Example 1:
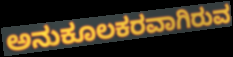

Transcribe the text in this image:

ಅನುಕೂಲಕರವಾಗಿರುವ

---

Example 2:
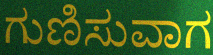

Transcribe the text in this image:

ಗುಣಿಸುವಾಗ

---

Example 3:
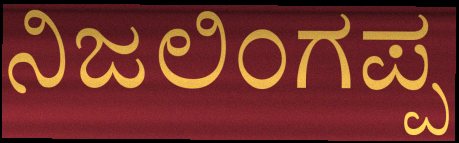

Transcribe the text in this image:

ನಿಜಲಿಂಗಪ್ಪ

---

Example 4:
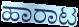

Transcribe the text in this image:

ಹಾರಾಟ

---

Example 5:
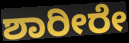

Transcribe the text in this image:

ಶಾರೀರೇ